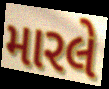
મારલે